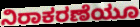
ನಿರಾಕರಣೆಯೂ